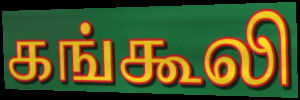
கங்கூலி